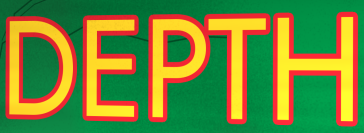
DEPTH